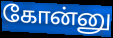
கோன்னு